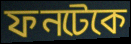
ফনটেকে